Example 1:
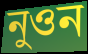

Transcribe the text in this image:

নুওন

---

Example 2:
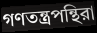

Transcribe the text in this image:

গণতন্ত্রপন্থিরা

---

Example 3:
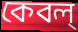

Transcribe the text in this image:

কেবল্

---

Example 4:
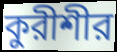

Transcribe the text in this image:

কুরীশীর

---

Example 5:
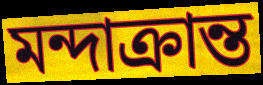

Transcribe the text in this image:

মন্দাক্রান্ত